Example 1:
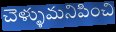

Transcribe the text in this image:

చెళ్ళుమనిపించి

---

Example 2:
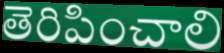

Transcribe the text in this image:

తెరిపించాలి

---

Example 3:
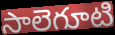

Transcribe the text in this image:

సాలెగూటి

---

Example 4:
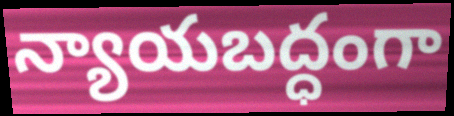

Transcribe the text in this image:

న్యాయబద్ధంగా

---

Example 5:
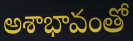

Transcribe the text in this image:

అశాభావంతో